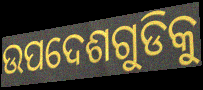
ଉପଦେଶଗୁଡିକୁ